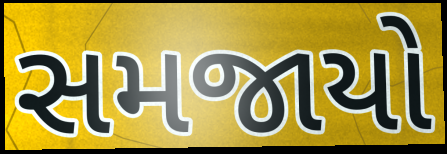
સમજાયો